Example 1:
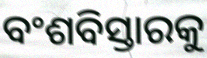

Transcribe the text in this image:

ବଂଶବିସ୍ତାରକୁ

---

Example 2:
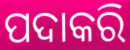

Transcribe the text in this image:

ପଦାକରି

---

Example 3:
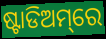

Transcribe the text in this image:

ଷ୍ଟାଡିଅମ୍‌ରେ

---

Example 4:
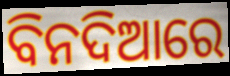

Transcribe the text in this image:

ବିନଦିଆରେ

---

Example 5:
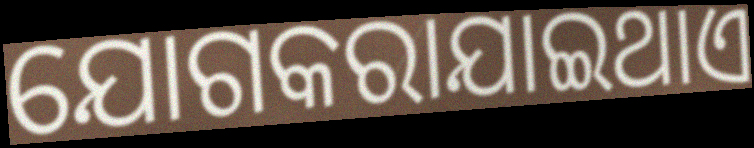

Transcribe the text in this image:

ଯୋଗକରାଯାଇଥାଏ